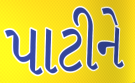
પાટીને